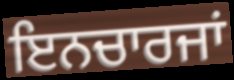
ਇਨਚਾਰਜਾਂ